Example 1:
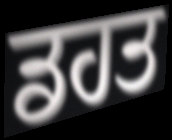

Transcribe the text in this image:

ਡਹਤ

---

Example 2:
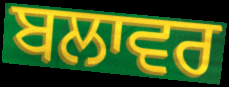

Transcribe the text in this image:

ਬਲਾਵਰ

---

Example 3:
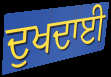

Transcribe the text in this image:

ਦੁਖਦਾਈ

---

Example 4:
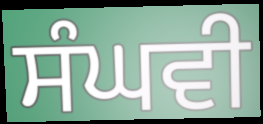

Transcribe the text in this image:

ਸੰਘਵੀ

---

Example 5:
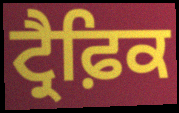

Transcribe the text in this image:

ਟ੍ਰੈਫ਼ਿਕ